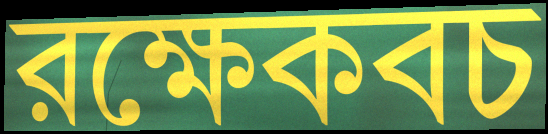
রক্ষেকবচ